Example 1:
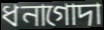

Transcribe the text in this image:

ধনাগোদা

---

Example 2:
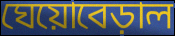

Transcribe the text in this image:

ঘেয়োবেড়াল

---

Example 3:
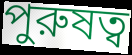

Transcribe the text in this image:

পুরুষত্ব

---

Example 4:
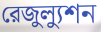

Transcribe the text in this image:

রেজুল্যুশন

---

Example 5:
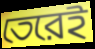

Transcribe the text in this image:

তেরেই